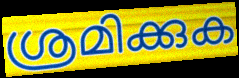
ശ്രമിക്കുക